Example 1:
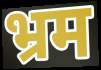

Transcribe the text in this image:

भ्रम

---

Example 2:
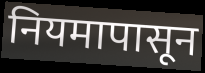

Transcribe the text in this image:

नियमापासून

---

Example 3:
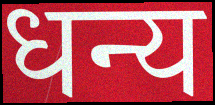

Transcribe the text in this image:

धन्य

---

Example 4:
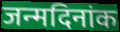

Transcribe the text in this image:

जन्मदिनांक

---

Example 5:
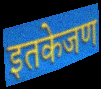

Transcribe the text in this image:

इतकेजण